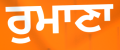
ਰੁਮਾਣਾ